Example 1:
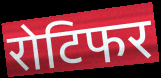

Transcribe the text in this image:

रोटिफर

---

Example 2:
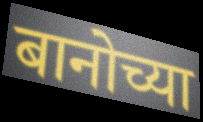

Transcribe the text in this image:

बानोच्या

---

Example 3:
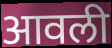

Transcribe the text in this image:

आवली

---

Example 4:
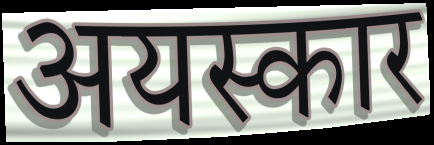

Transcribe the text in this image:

अयस्कार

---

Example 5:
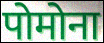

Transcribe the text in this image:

पोमोना